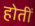
होतीं